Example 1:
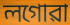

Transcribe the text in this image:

লগোৱা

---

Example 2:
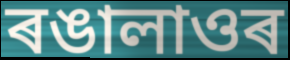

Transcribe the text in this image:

ৰঙালাওৰ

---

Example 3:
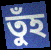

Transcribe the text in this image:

তুঁহ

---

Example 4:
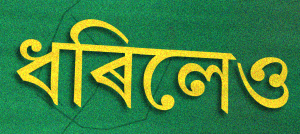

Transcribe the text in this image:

ধৰিলেও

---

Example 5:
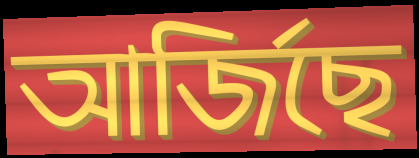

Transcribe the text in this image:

আৰ্জিছে